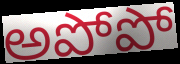
అపోపో